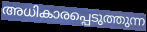
അധികാരപ്പെടുത്തുന്ന